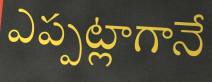
ఎప్పట్లాగానే